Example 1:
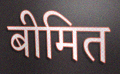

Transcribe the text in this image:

बीमित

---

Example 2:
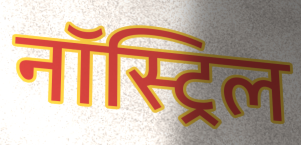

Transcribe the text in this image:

नॉस्ट्रिल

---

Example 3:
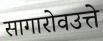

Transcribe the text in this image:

सागारोवउत्ते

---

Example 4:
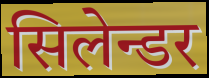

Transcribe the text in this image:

सिलेन्डर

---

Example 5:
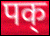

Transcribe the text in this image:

पक्